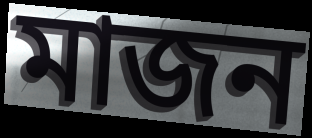
মাজন